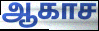
ஆகாச